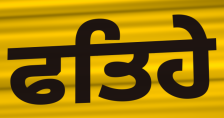
ਫਤਿਹੇ